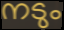
നടും